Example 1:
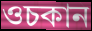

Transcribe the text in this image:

ওচকান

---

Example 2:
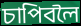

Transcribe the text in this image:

চাপিবলৈ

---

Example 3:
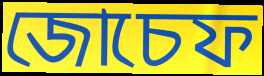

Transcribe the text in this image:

জোচেফ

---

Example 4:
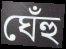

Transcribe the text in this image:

ঘেঁহু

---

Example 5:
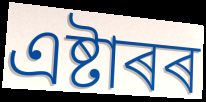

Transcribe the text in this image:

এষ্টাৰৰ